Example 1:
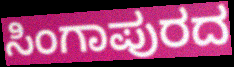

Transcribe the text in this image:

ಸಿಂಗಾಪುರದ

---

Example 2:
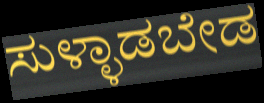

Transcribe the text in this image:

ಸುಳ್ಳಾಡಬೇಡ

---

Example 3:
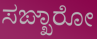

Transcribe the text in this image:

ಸಙ್ಖಾರೋ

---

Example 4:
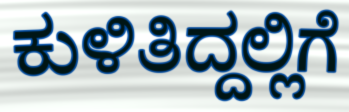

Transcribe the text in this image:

ಕುಳಿತಿದ್ದಲ್ಲಿಗೆ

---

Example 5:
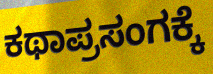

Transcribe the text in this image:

ಕಥಾಪ್ರಸಂಗಕ್ಕೆ